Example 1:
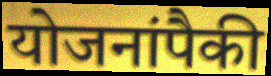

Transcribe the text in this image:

योजनांपैकी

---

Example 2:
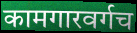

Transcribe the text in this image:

कामगारवर्गच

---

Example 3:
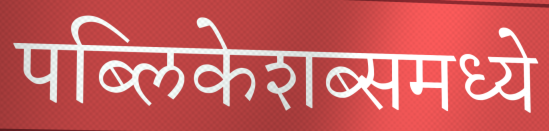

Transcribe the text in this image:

पब्लिकेशब्समध्ये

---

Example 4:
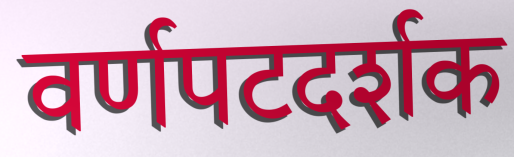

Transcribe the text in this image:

वर्णपटदर्शक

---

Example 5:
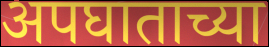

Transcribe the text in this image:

अपघाताच्या